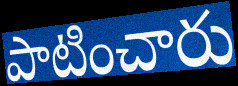
పాటించారు